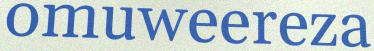
omuweereza